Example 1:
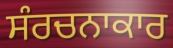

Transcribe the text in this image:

ਸੰਰਚਨਾਕਾਰ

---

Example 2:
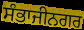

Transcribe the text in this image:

ਸੰਭਾਜੀਨਗਰ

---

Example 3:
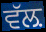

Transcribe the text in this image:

ਵੱਲ਼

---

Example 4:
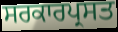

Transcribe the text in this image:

ਸਰਕਾਰਪ੍ਰਸਤ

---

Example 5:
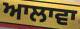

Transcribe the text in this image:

ਆਲਾਵਾ